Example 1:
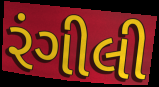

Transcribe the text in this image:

રંગીલી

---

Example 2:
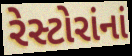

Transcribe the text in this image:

રેસ્ટોરાંનાં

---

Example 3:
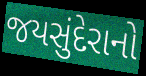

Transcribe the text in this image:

જયસુંદેરાનો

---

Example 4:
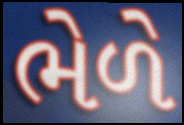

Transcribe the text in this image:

ભેળે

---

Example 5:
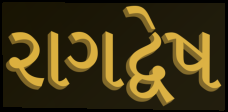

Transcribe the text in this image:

રાગદ્વેષ